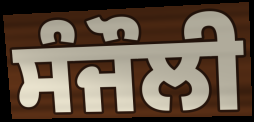
ਸੰਜੌਲੀ